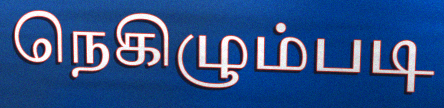
நெகிழும்படி